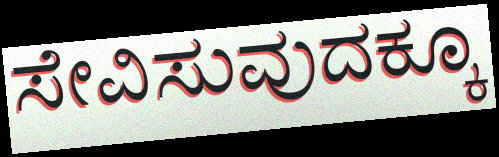
ಸೇವಿಸುವುದಕ್ಕೂ